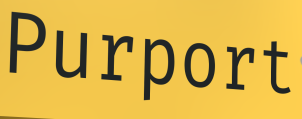
Purport